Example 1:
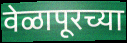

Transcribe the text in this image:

वेळापूरच्या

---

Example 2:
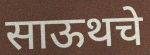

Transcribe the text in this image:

साऊथचे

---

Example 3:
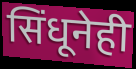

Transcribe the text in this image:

सिंधूनेही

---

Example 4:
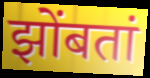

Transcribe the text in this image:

झोंबतां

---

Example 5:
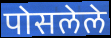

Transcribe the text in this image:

पोसलेले